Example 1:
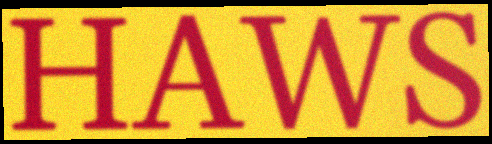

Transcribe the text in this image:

HAWS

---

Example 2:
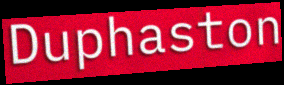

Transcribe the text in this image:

Duphaston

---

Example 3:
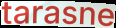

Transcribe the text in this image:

tarasne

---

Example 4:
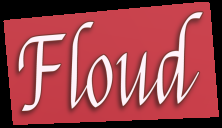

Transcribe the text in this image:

Floud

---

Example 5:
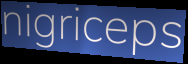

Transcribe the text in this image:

nigriceps